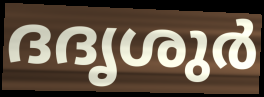
ദദൃശുർ